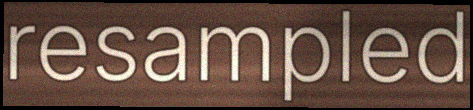
resampled